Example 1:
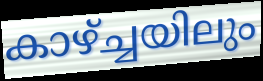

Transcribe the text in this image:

കാഴ്ച്ചയിലും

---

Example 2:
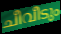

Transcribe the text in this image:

ചീവീടും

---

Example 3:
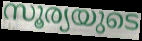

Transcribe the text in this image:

സൂര്യയുടെ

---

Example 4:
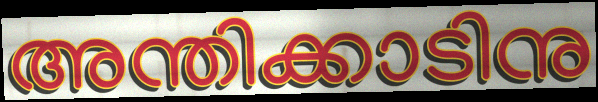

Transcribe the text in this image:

അന്തിക്കാടിനു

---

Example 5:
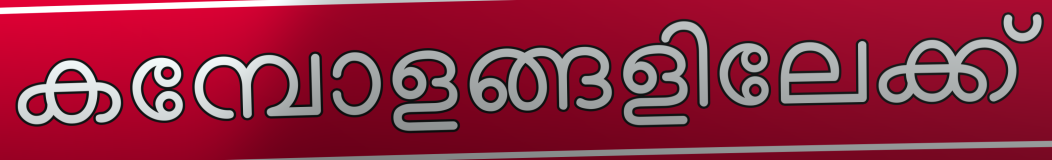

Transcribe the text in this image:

കമ്പോളങ്ങളിലേക്ക്